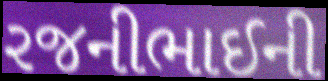
રજનીભાઈની